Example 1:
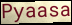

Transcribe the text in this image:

Pyaasa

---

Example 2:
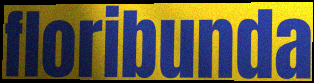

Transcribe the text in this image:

floribunda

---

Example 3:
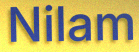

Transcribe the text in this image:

Nilam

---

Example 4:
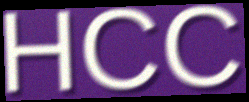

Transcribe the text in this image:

HCC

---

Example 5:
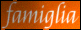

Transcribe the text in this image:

famiglia